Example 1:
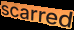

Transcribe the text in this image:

scarred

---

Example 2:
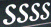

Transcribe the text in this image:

ssss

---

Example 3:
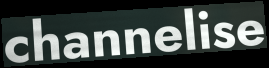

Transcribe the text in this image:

channelise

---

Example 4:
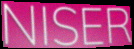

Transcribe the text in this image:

NISER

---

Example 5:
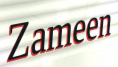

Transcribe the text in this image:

Zameen